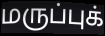
மருப்புக்